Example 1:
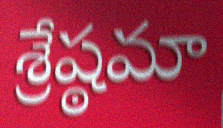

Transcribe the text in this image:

శ్రేష్ఠమా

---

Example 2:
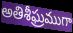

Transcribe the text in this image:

అతిశీఘ్రముగా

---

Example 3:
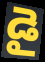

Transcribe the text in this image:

డై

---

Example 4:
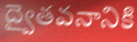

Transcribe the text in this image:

ద్వైతవనానికి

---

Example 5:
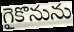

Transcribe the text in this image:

గైకొనును